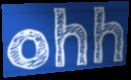
ohh